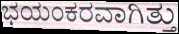
ಭಯಂಕರವಾಗಿತ್ತು